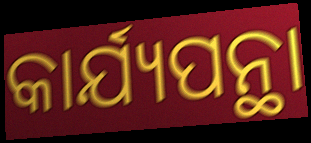
କାର୍ଯ୍ୟପନ୍ଥା